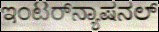
ಇಂಟರ್‌ನ್ಯಾಷನಲ್